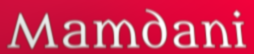
Mamdani